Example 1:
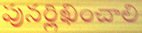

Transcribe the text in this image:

పునర్లిఖించాలి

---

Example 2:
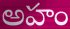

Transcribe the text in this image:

అహం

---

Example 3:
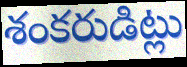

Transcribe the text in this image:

శంకరుడిట్లు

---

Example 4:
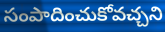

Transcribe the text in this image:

సంపాదించుకోవచ్చని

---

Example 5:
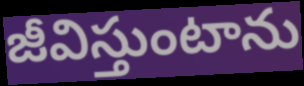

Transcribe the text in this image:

జీవిస్తుంటాను